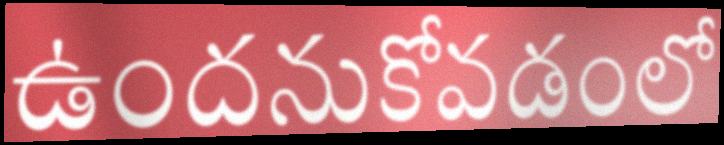
ఉందనుకోవడంలో